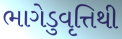
ભાગેડુવૃત્તિથી